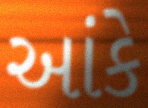
આંકે